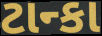
ટાન્કા